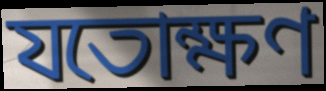
যতোক্ষণ